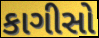
કાગીસો